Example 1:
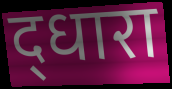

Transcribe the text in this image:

द्धारा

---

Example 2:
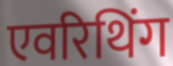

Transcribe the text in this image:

एवरिथिंग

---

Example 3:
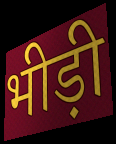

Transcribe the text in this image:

भीड़ी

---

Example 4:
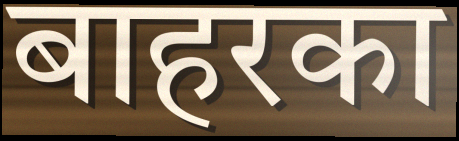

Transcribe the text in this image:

बाहरका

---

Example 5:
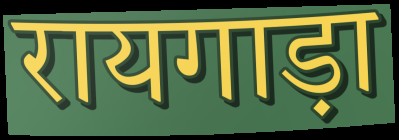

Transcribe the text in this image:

रायगाड़ा